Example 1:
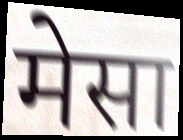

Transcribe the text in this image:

मेसा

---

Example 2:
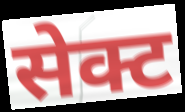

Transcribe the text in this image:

सेक्ट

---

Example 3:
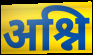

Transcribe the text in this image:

अश्नि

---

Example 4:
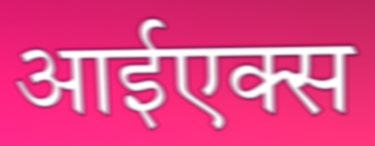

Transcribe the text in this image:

आईएक्स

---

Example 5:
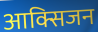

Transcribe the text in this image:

आक्सिजन